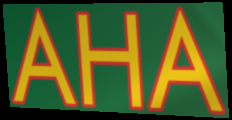
AHA